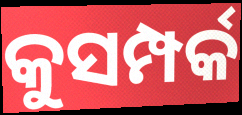
କୁସମ୍ପର୍କ